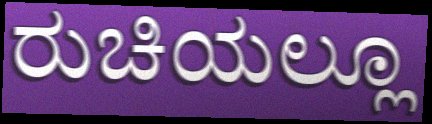
ರುಚಿಯಲ್ಲೂ